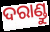
ଦରାଣ୍ଡୁ